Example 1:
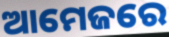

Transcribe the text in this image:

ଆମେଜରେ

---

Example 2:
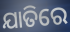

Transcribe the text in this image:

ଯାତିରେ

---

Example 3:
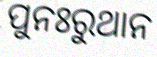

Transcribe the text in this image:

ପୁନଃରୁଥାନ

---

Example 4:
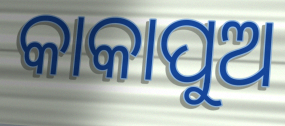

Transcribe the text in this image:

କାକାପୁଅ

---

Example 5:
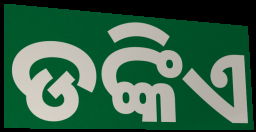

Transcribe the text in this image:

ଡଙ୍କିଏ